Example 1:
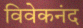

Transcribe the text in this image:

विवेकनंद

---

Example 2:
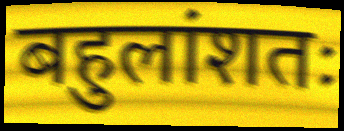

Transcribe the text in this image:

बहुलांशतः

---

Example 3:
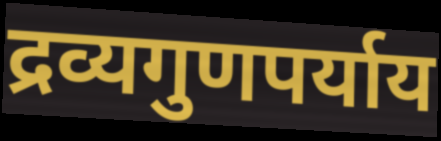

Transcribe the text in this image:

द्रव्यगुणपर्याय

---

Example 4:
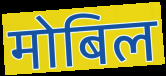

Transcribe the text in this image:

मोबिल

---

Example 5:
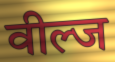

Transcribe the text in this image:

वील्ज